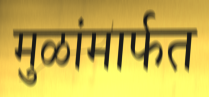
मुळांमार्फत